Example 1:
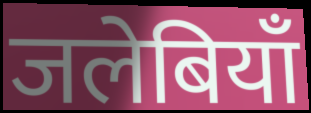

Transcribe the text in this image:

जलेबियाँ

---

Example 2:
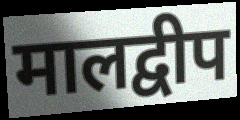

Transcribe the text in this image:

मालद्वीप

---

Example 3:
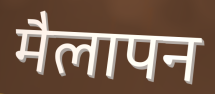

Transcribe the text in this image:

मैलापन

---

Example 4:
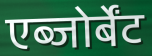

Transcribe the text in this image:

एब्जोर्बेंट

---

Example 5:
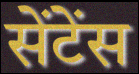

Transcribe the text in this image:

सेंटेंस